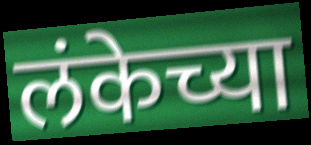
लंकेच्या